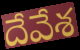
దేవేశ